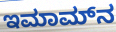
ಇಮಾಮ್‍ನ